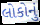
લોકોનું